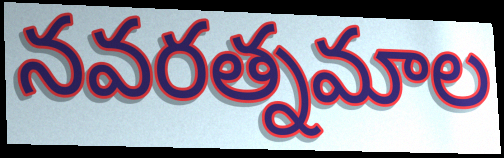
నవరత్నమాల